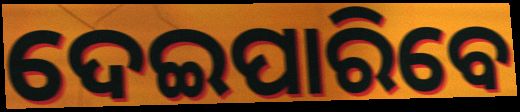
ଦେଇପାରିବେ